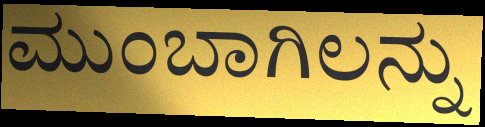
ಮುಂಬಾಗಿಲನ್ನು